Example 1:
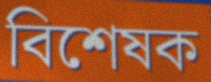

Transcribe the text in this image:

বিশেষক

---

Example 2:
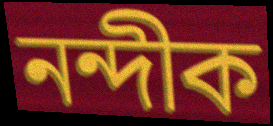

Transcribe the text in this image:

নন্দীক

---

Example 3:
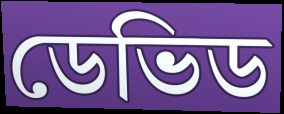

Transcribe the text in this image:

ডেভিড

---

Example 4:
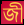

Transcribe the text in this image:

জী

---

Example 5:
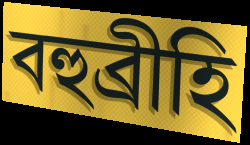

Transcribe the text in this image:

বহুব্ৰীহি